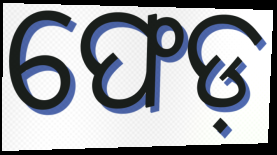
ଫେଡ଼